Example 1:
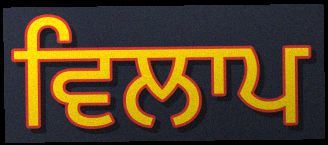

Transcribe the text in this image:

ਵਿਲਾਪ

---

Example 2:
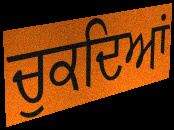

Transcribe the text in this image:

ਚੁਕਦਿਆਂ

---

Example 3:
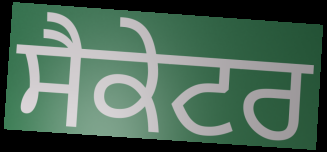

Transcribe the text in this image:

ਸੈਕੇਟਰ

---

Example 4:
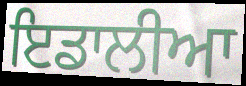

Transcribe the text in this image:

ਇਡਾਲੀਆ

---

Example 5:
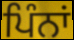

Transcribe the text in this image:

ਪਿੰਨਾਂ